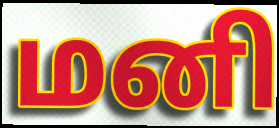
மனி